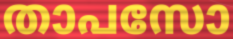
താപസോ